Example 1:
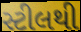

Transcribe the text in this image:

સ્ટીલથી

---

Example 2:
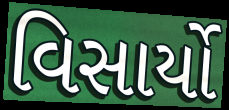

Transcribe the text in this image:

વિસાર્યો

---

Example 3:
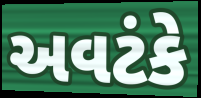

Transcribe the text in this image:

અવટંકે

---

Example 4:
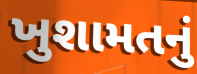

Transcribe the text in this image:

ખુશામતનું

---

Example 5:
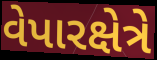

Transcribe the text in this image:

વેપારક્ષેત્રે